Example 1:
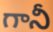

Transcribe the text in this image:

గానీ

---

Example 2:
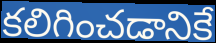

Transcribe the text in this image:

కలిగించడానికే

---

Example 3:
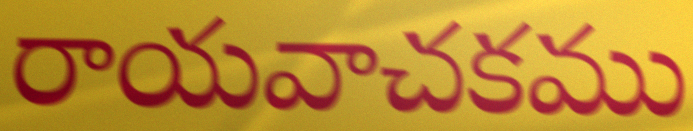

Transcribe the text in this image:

రాయవాచకము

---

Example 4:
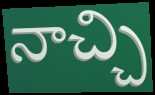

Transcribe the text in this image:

నాచ్చి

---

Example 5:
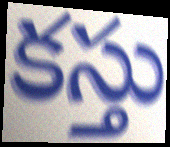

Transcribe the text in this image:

కస్తు